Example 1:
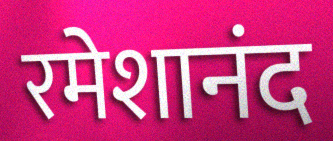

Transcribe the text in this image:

रमेशानंद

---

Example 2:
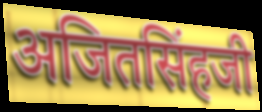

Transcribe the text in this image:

अजितसिंहजी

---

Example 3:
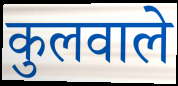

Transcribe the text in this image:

कुलवाले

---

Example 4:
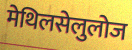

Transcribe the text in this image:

मेथिलसेलुलोज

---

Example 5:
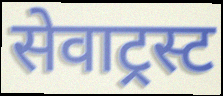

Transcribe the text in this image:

सेवाट्रस्ट